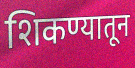
शिकण्यातून